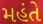
મહંતે